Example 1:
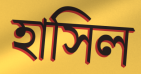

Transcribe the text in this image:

হাসিল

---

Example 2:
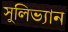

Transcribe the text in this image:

সুলিভ্যান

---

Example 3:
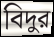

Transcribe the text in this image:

বিদুর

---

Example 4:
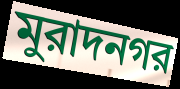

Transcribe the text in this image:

মুরাদনগর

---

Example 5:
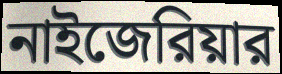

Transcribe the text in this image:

নাইজেরিয়ার